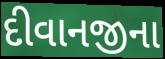
દીવાનજીના